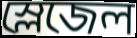
স্লেজেল